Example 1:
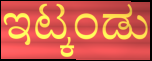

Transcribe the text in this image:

ಇಟ್ಕಂಡು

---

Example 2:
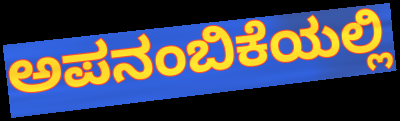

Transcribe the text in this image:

ಅಪನಂಬಿಕೆಯಲ್ಲಿ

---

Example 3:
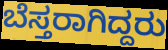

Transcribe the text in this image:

ಬೆಸ್ತರಾಗಿದ್ದರು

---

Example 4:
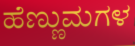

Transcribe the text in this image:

ಹೆಣ್ಣುಮಗಳ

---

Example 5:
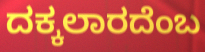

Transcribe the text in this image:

ದಕ್ಕಲಾರದೆಂಬ